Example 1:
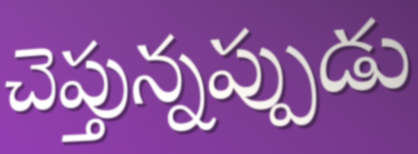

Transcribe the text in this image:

చెప్తున్నప్పుడు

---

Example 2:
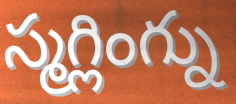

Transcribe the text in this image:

స్మగ్లింగ్ను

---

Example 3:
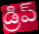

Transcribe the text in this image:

డ్రిప్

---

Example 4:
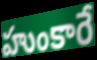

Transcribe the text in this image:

హుంకారే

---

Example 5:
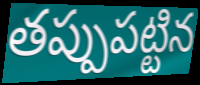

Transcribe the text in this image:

తప్పుపట్టిన